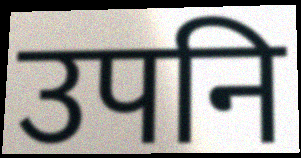
उपनि